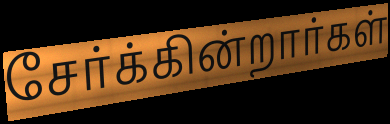
சேர்க்கின்றார்கள்